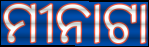
ମୀନାଟା